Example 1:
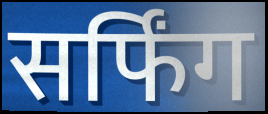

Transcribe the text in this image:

सर्फिंग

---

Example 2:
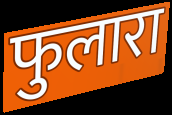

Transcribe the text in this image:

फुलारा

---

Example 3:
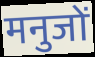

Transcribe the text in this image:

मनुजों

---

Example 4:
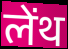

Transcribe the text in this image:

लेंथ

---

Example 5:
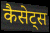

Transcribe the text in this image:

कैसेट्स